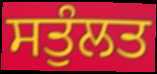
ਸਤੁੰਲਤ